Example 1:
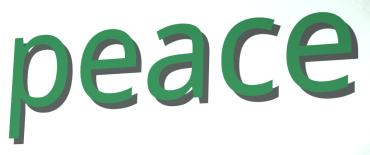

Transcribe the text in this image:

peace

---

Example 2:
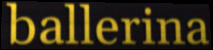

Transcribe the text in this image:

ballerina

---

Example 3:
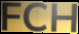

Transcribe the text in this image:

FCH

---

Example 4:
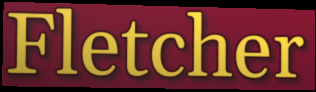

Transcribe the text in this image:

Fletcher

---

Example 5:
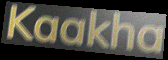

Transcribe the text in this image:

Kaakha